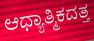
ಆಧ್ಯಾತ್ಮಿಕದತ್ತ